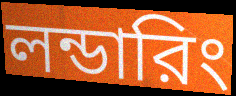
লন্ডারিং